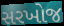
સરખોજ